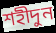
শহীদুন